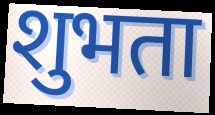
शुभता